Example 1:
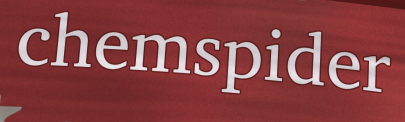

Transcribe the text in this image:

chemspider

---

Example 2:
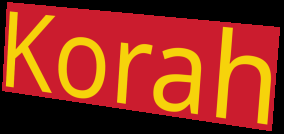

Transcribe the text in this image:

Korah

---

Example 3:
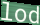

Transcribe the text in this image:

lod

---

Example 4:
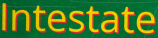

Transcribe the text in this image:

Intestate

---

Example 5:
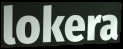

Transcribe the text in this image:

lokera